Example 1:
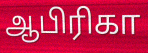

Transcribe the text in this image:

ஆபிரிகா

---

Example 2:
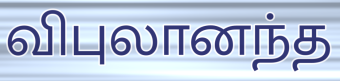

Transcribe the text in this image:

விபுலானந்த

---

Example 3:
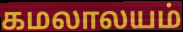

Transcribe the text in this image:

கமலாலயம்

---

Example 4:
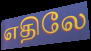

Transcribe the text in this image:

எதிலே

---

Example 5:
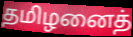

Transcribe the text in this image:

தமிழனைத்